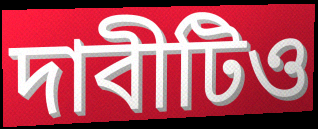
দাবীটিও